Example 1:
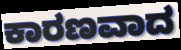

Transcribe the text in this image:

ಕಾರಣವಾದ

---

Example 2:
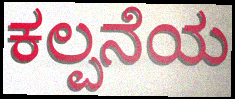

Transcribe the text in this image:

ಕಲ್ಪನೆಯ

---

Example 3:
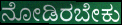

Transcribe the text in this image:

ನೋಡಿರಬೇಕು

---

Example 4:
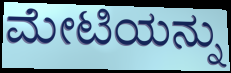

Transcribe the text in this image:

ಮೇಟಿಯನ್ನು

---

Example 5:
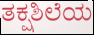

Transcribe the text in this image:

ತಕ್ಷಶಿಲೆಯ